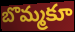
బొమ్మకూ